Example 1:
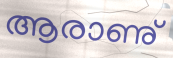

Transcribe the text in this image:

ആരാണു്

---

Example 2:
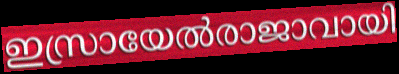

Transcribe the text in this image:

ഇസ്രായേൽരാജാവായി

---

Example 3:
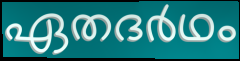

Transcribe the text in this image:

ഏതദർഥം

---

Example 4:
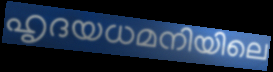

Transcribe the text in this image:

ഹൃദയധമനിയിലെ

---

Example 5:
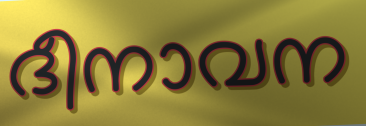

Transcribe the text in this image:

ദീനാവന